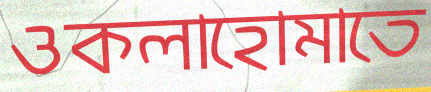
ওকলাহোমাতে